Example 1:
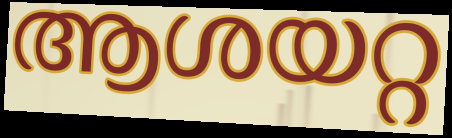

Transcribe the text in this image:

ആശയറ്റ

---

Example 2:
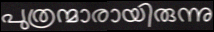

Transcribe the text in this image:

പുത്രന്മാരായിരുന്നു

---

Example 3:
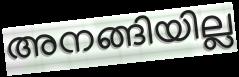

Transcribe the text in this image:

അനങ്ങിയില്ല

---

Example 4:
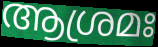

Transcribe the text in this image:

ആശ്രമഃ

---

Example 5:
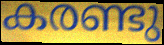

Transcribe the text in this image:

കരണ്ടു